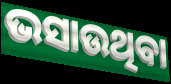
ଭସାଉଥିବା